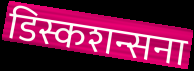
डिस्कशन्सना